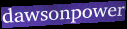
dawsonpower